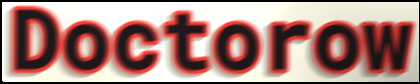
Doctorow